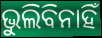
ଭୁଲିବିନାହିଁ